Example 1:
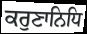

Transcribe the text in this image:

ਕਰੁਣਾਨਿਧਿ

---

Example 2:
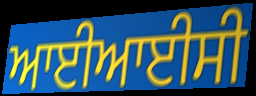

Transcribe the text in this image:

ਆਈਆਈਸੀ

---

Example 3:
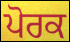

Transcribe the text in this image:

ਪੋਰਕ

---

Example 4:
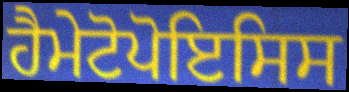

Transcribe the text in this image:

ਹੈਮੇਟੋਪੋਇਸਿਸ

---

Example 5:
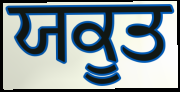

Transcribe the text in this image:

ਯਕੂਤ